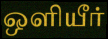
ஒளியீர்